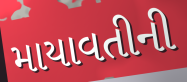
માયાવતીની